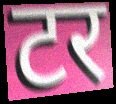
टर